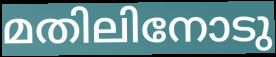
മതിലിനോടു